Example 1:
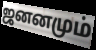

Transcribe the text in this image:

ஜனனமும்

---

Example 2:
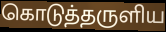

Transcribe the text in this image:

கொடுத்தருளிய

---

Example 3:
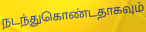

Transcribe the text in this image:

நடந்துகொண்டதாகவும்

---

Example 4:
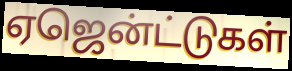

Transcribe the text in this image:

ஏஜென்ட்டுகள்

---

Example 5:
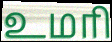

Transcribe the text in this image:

உமரி